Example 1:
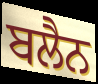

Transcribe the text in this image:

ਬਲੈਨ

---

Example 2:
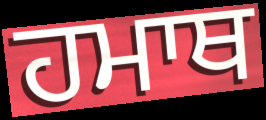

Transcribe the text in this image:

ਹਮਾਥ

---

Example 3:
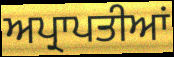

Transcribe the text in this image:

ਅਪ੍ਰਾਪਤੀਆਂ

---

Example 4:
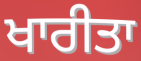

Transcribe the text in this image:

ਖਾਰੀਤਾ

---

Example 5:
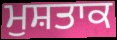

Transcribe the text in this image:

ਮੁਸ਼ਤਾਕ